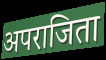
अपराजिता